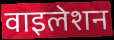
वाइलेशन